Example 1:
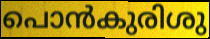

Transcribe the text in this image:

പൊൻകുരിശു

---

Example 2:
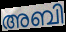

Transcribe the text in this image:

അബി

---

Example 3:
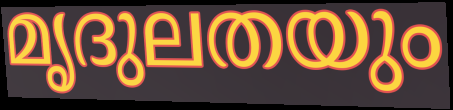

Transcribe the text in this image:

മൃദുലതയും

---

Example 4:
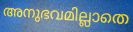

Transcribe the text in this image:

അനുഭവമില്ലാതെ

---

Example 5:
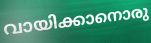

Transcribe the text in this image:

വായിക്കാനൊരു